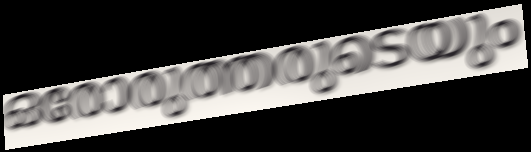
ഒരോരുത്തരുടെയും